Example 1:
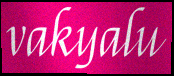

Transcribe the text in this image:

vakyalu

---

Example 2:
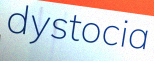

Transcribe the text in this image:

dystocia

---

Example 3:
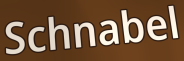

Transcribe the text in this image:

Schnabel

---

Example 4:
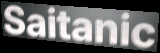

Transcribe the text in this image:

Saitanic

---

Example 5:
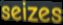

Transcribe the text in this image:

seizes